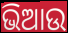
ଭିଆଉ